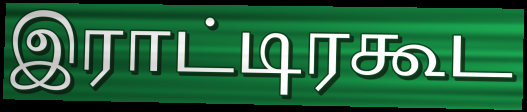
இராட்டிரகூட